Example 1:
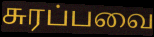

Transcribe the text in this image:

சுரப்பவை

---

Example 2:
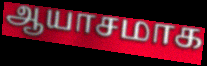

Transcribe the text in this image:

ஆயாசமாக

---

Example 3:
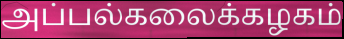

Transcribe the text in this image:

அப்பல்கலைக்கழகம்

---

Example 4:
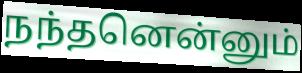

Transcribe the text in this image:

நந்தனென்னும்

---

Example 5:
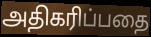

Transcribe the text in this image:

அதிகரிப்பதை